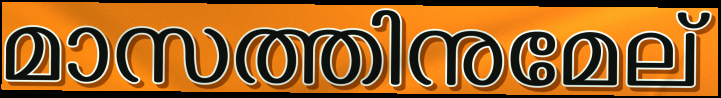
മാസത്തിനുമേല്